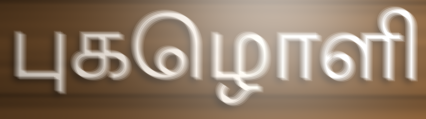
புகழொளி